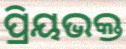
ପ୍ରିୟଭକ୍ତ